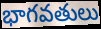
భాగవతులు